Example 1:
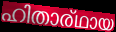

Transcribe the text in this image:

ഹിതാര്ഥായ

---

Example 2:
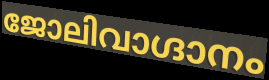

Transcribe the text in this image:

ജോലിവാഗ്ദാനം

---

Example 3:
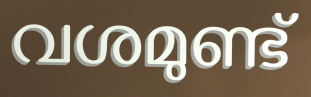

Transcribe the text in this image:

വശമുണ്ട്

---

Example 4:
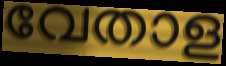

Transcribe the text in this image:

വേതാള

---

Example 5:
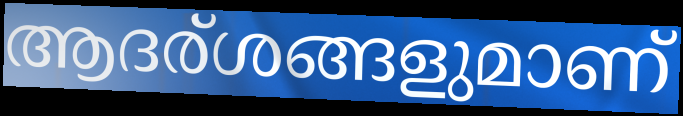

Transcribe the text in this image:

ആദര്ശങ്ങളുമാണ്